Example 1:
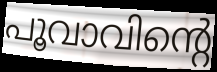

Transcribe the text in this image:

പൂവാവിന്റെ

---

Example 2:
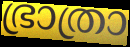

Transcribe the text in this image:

ഭ്രാത്രാ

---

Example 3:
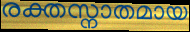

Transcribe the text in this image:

രക്തസ്നാതമായ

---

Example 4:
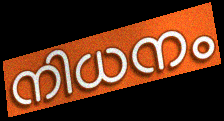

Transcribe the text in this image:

നിധനം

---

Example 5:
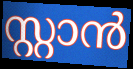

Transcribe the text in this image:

സ്റ്റാൻ